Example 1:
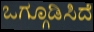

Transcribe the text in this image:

ಒಗ್ಗೂಡಿಸಿದೆ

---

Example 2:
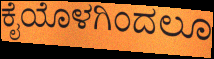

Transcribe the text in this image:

ಕೈಯೊಳಗಿಂದಲೂ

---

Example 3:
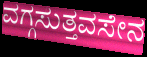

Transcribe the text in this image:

ವಗ್ಗಸುತ್ತವಸೇನ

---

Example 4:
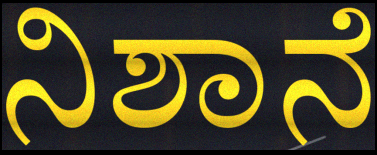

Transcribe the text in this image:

ನಿಶಾನೆ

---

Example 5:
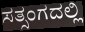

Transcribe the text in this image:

ಸತ್ಸಂಗದಲ್ಲಿ